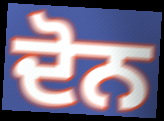
ਦੋਨ